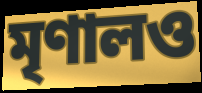
মৃণালও